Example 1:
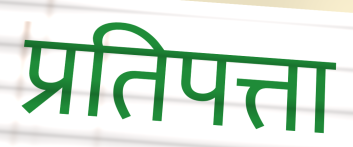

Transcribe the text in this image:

प्रतिपत्ता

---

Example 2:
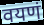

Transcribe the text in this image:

वयणं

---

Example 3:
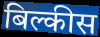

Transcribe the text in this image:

बिल्कीस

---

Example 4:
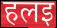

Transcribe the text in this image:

हलइ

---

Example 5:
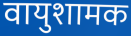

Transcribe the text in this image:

वायुशामक